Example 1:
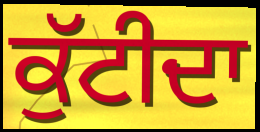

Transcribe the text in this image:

ਕੁੱਟੀਦਾ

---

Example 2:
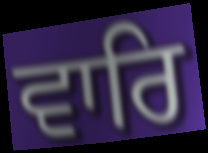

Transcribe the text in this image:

ਵਾਰਿ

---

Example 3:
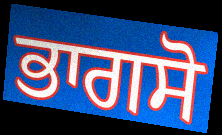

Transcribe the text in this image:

ਭਾਗਸੋ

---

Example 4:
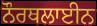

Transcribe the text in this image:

ਨੌਰਥਲਾਈਨ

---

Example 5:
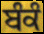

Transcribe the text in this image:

ਬੰਕੰ